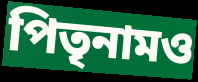
পিতৃনামও